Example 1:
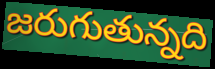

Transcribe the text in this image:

జరుగుతున్నది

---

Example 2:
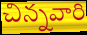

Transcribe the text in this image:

చిన్నవారి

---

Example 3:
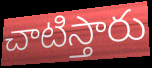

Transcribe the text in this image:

చాటిస్తారు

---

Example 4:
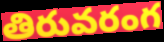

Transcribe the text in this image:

తిరువరంగ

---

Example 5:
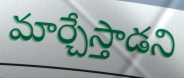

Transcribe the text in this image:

మార్చేస్తాడని